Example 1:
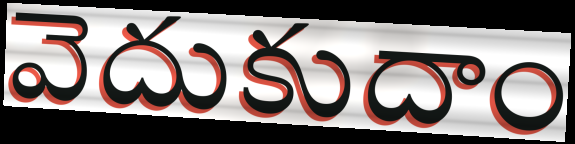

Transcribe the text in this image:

వెదుకుదాం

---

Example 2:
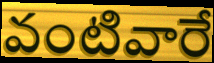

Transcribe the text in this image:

వంటివారే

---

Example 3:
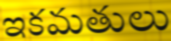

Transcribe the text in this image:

ఇకమతులు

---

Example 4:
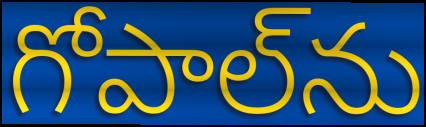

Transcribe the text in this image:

గోపాల్‌ను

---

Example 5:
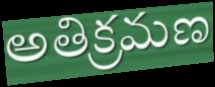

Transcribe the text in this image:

అతిక్రమణ